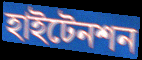
হাইটেনশন